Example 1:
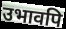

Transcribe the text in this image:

उभावपि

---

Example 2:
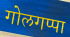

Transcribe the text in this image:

गोलगप्पा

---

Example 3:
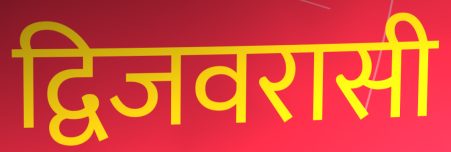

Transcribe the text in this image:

द्विजवरासी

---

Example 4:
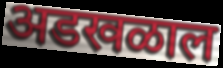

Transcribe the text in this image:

अडखळाल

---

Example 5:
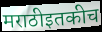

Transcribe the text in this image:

मराठीइतकीच